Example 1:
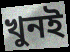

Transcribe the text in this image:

খুনই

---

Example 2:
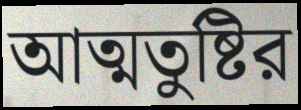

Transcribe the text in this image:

আত্মতুষ্টির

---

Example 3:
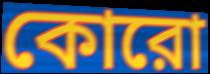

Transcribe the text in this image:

কোরো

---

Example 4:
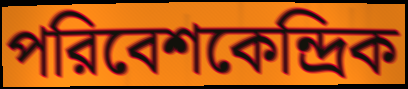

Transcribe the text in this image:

পরিবেশকেন্দ্রিক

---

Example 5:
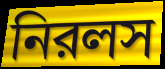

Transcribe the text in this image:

নিরলস